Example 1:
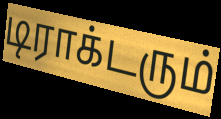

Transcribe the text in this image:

டிராக்டரும்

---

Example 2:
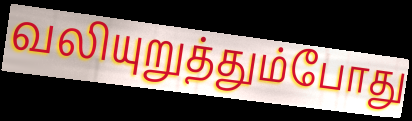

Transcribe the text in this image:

வலியுறுத்தும்போது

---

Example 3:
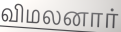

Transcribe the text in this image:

விமலனார்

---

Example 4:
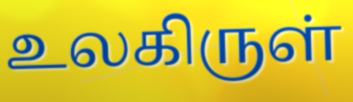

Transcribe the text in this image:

உலகிருள்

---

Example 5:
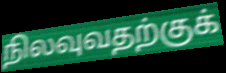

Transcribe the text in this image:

நிலவுவதற்குக்